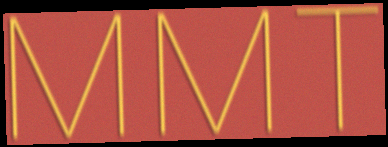
MMT